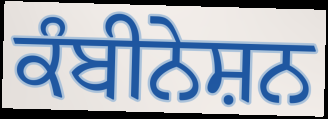
ਕੰਬੀਨੇਸ਼ਨ